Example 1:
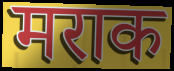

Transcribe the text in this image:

मराक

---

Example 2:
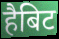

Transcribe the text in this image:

हैबिट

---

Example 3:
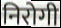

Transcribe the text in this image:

निरोगी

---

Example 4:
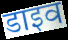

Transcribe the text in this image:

डाइव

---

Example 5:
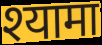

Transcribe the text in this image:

श्‍यामा